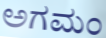
ಅಗಮಂ